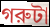
গরুটা